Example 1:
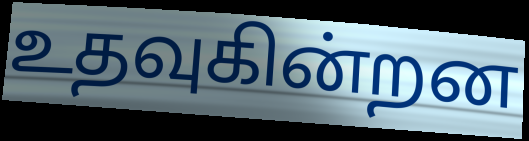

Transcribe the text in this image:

உதவுகின்றன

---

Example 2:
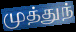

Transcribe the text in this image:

முத்துந்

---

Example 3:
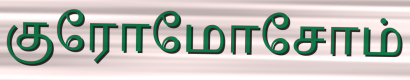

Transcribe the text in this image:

குரோமோசோம்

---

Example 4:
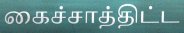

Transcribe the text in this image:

கைச்சாத்திட்ட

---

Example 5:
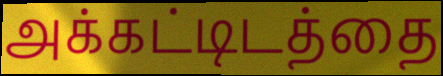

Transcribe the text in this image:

அக்கட்டிடத்தை